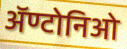
ॲण्टोनिओ